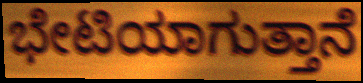
ಭೇಟಿಯಾಗುತ್ತಾನೆ